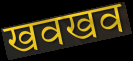
खवखव